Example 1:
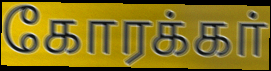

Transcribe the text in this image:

கோரக்கர்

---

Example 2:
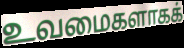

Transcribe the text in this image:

உவமைகளாகக்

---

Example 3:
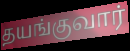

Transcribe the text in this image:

தயங்குவார்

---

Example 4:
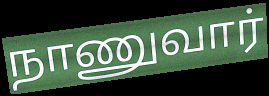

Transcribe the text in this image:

நாணுவார்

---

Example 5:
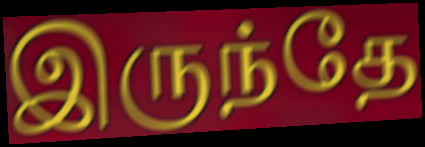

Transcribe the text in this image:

இருந்தே